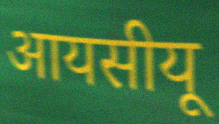
आयसीयू